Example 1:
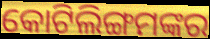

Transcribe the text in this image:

କୋଟିଲିଙ୍ଗମଙ୍କର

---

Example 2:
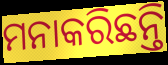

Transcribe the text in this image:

ମନାକରିଛନ୍ତି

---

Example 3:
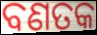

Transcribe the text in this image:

ବଣତକ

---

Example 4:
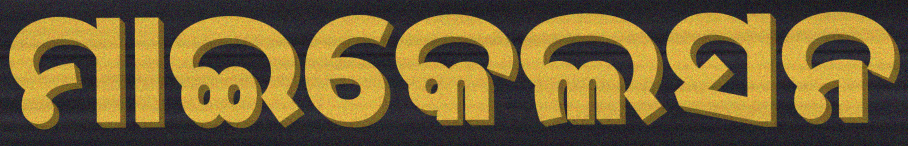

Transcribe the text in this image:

ମାଇକେଲସନ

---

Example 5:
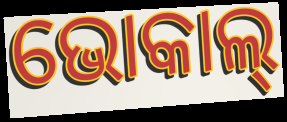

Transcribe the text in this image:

ଭୋକାଲ୍